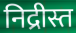
निद्रीस्त